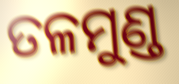
ତଳମୁଣ୍ଡ